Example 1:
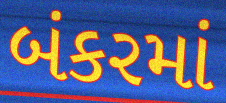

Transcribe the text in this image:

બંકરમાં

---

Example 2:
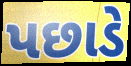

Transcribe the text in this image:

પછાડે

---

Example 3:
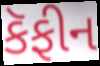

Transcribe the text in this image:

કૅફીન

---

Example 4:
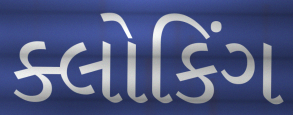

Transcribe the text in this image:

ક્લોકિંગ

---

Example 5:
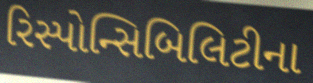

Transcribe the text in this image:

રિસ્પોન્સિબિલિટીના